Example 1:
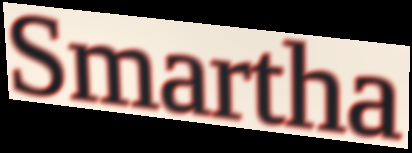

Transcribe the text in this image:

Smartha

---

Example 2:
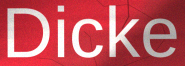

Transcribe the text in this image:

Dicke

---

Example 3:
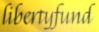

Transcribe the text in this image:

libertyfund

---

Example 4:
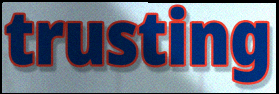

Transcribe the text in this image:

trusting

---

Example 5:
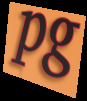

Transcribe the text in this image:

pg